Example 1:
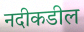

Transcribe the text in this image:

नदीकडील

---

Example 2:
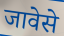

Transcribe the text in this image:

जावेसे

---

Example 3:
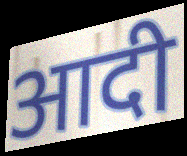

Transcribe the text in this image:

आदी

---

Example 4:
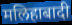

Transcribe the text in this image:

मलिहाबादी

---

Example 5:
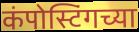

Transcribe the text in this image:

कंपोस्टिंगच्या